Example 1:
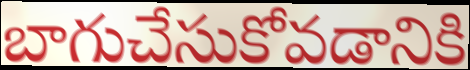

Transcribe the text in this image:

బాగుచేసుకోవడానికి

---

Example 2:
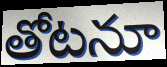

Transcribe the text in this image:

తోటనూ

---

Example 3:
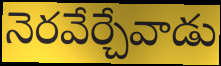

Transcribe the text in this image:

నెరవేర్చేవాడు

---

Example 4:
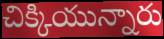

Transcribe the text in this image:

చిక్కియున్నారు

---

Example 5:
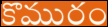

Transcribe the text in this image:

కొమురం